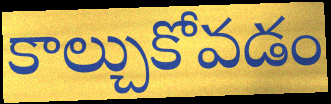
కాల్చుకోవడం